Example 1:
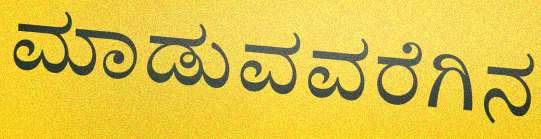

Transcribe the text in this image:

ಮಾಡುವವರೆಗಿನ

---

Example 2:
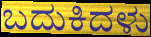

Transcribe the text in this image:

ಬದುಕಿದಳು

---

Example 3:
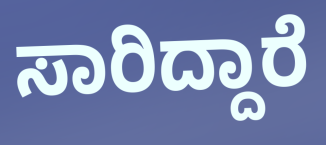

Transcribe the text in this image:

ಸಾರಿದ್ದಾರೆ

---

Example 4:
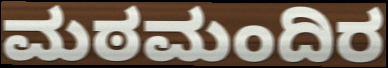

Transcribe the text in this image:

ಮಠಮಂದಿರ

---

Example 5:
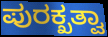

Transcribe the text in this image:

ಪುರಕ್ಖತ್ವಾ